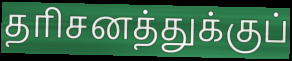
தரிசனத்துக்குப்